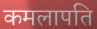
कमलापति